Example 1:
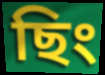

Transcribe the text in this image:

ছিং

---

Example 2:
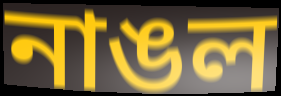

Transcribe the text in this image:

নাঙল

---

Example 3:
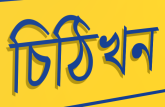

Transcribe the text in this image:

চিঠিখন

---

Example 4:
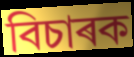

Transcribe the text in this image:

বিচাৰক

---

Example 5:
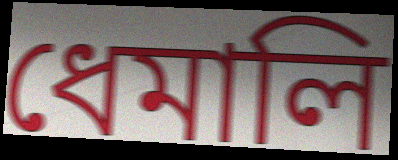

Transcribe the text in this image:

ধেমালি